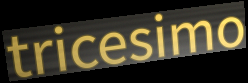
tricesimo